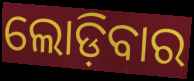
ଲୋଡ଼ିବାର